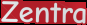
Zentra